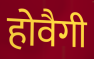
होवैगी